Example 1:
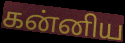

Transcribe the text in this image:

கன்னிய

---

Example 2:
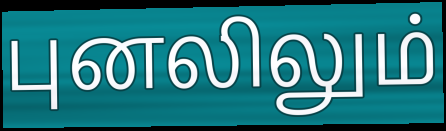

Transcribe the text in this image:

புனலிலும்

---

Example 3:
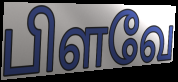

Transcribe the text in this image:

பிளவே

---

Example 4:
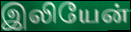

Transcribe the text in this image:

இலியேன்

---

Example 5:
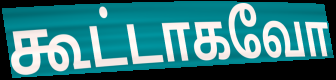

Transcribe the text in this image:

கூட்டாகவோ